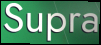
Supra